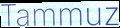
Tammuz